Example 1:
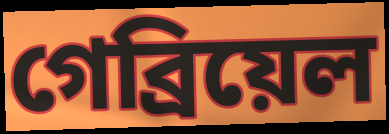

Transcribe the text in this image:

গেব্ৰিয়েল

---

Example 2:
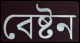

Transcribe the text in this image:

বেষ্টন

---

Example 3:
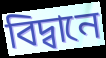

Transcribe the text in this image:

বিদ্বানে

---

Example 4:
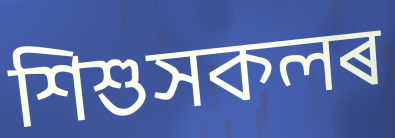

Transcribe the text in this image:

শিশুসকলৰ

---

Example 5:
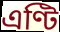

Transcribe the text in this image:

এণ্টি